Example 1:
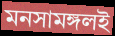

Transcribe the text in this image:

মনসামঙ্গলই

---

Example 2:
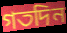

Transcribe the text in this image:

গতদিন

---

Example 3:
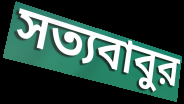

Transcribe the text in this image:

সত্যবাবুর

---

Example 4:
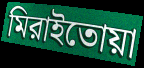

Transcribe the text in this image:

মিরাইতোয়া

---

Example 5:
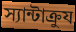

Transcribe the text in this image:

স্যান্টাক্রুয